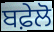
ਬਫ਼ੇਲੋ